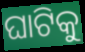
ଘାଟିକୁ